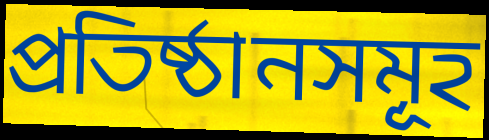
প্ৰতিষ্ঠানসমূহ